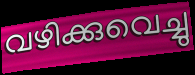
വഴിക്കുവെച്ചു